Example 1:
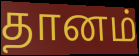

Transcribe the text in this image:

தானம்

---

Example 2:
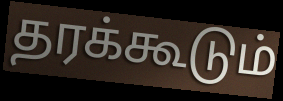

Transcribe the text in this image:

தரக்கூடும்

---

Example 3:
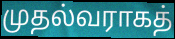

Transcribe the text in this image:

முதல்வராகத்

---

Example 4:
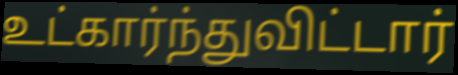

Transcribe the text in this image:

உட்கார்ந்துவிட்டார்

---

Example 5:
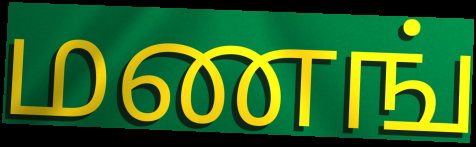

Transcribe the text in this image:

மணங்